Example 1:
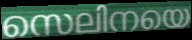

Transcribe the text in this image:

സെലിനയെ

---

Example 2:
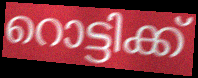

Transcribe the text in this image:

റൊട്ടിക്ക്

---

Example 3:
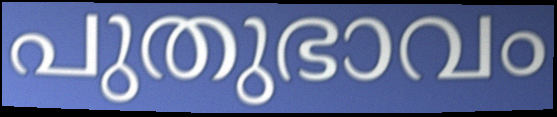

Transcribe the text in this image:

പുതുഭാവം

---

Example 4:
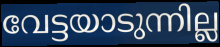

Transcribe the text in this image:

വേട്ടയാടുന്നില്ല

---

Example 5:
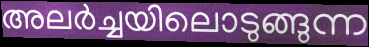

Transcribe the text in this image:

അലർച്ചയിലൊടുങ്ങുന്ന